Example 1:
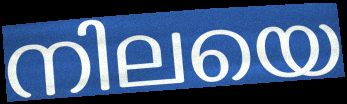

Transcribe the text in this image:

നിലയെ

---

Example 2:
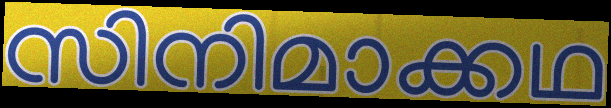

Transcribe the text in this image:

സിനിമാക്കഥ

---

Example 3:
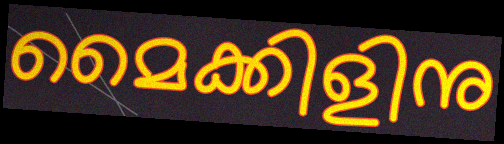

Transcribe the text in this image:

മൈക്കിളിനു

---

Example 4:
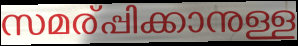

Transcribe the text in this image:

സമര്പ്പിക്കാനുള്ള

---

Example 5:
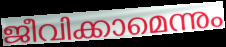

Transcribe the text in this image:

ജീവിക്കാമെന്നും